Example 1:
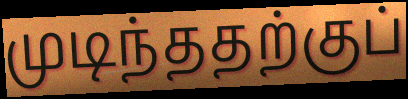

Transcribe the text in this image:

முடிந்ததற்குப்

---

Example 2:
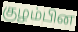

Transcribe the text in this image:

குழம்பின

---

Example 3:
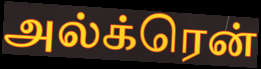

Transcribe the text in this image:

அல்க்ரென்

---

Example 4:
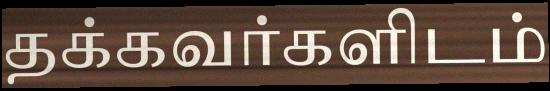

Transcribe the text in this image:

தக்கவர்களிடம்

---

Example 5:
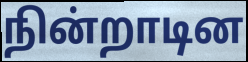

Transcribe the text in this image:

நின்றாடின